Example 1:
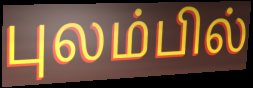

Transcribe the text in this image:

புலம்பில்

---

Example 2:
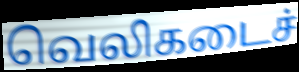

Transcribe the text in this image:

வெலிகடைச்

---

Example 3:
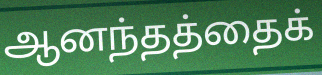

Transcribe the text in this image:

ஆனந்தத்தைக்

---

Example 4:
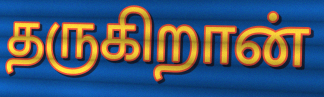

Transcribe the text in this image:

தருகிறான்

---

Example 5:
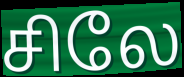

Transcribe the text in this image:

சிலே